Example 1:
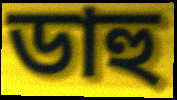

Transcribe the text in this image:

ডাহু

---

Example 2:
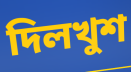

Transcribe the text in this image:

দিলখুশ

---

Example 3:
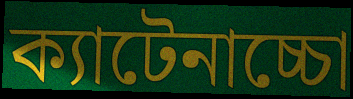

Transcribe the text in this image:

ক্যাটেনাচ্চো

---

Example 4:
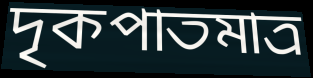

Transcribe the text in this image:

দৃকপাতমাত্র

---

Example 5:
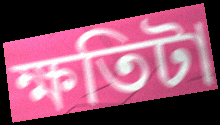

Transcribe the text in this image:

ক্ষতিটা